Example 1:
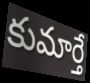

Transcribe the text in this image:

కుమార్తే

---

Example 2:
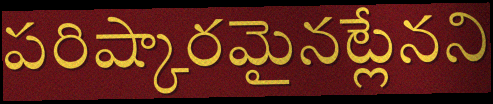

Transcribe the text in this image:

పరిష్కారమైనట్లేనని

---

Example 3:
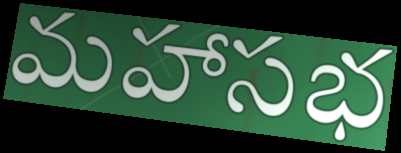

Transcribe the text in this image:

మహాసభ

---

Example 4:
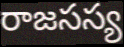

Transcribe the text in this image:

రాజసస్య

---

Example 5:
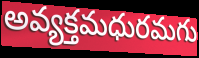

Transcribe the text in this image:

అవ్యక్తమధురమగు